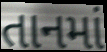
તાનમાં